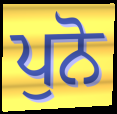
ਪੁਨੋ